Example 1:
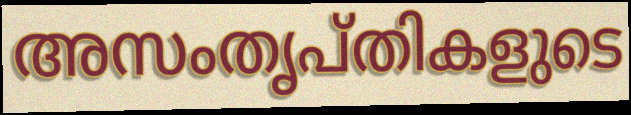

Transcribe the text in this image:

അസംതൃപ്തികളുടെ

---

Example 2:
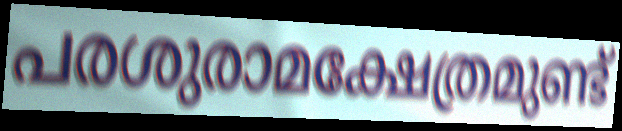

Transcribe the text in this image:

പരശുരാമക്ഷേത്രമുണ്ട്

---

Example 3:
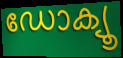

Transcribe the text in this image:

ഡോക്യൂ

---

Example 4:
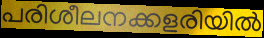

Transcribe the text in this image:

പരിശീലനക്കളരിയിൽ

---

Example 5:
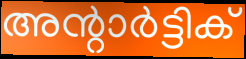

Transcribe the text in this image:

അന്റാർട്ടിക്